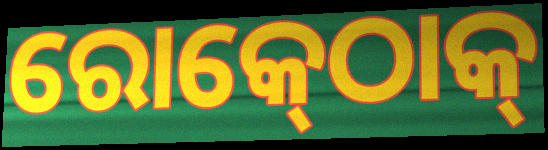
ରୋକ୍‍ଠୋକ୍